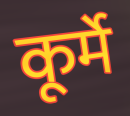
कूर्मे